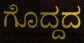
ಗೊದ್ದದ